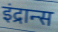
इंद्रान्स